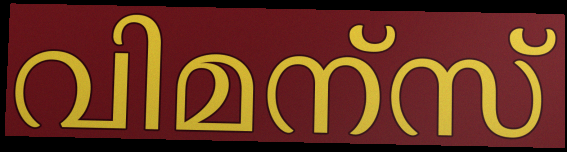
വിമന്സ്